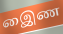
இைண